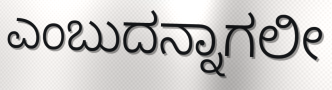
ಎಂಬುದನ್ನಾಗಲೀ